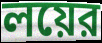
লয়ের